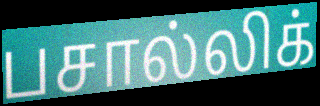
பசால்லிக்